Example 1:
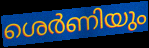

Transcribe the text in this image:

ശെർണിയും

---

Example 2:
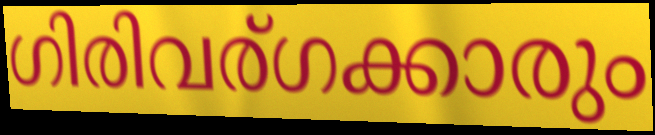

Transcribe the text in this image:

ഗിരിവര്ഗക്കാരും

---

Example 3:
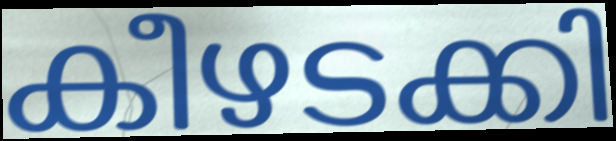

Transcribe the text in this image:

കീഴടക്കി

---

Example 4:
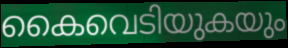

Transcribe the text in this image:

കൈവെടിയുകയും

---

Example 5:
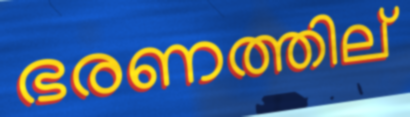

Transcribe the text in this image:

ഭരണത്തില്